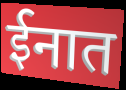
ईनात